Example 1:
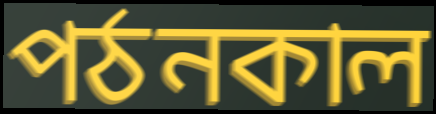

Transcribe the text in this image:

পঠনকাল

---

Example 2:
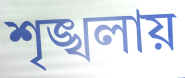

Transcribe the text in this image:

শৃঙ্খলায়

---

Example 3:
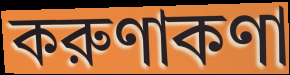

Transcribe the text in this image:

করুণাকণা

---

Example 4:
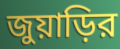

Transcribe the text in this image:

জুয়াড়ির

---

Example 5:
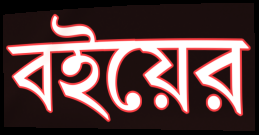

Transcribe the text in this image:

বইয়ের